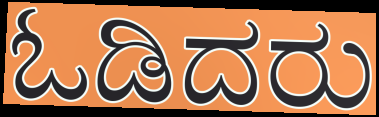
ಓಡಿದರು